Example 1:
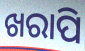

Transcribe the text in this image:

ଖରାପି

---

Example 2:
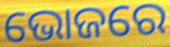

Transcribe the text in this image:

ଭୋଜରେ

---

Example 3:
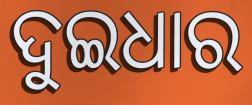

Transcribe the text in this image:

ଦୁଇଧାର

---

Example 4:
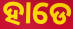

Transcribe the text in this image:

ହାଡେ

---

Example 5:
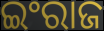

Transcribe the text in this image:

ଇଂରାଜ